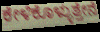
ಕೇಳಿಕೊಳ್ಳುತ್ತೇನೆ